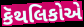
કૅથલિકોએ